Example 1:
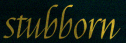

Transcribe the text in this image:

stubborn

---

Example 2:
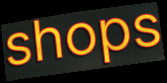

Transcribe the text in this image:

shops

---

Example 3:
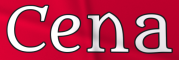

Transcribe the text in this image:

Cena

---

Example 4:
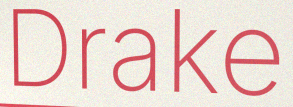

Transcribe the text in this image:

Drake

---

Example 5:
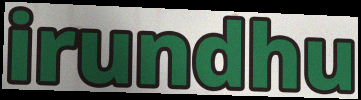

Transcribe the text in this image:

irundhu